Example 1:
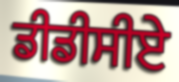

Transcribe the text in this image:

ਡੀਡੀਸੀਏ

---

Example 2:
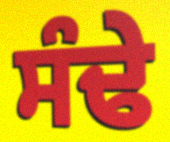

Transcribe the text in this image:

ਸੰਢੇ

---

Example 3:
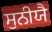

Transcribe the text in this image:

ਸੁਨੀਯੈ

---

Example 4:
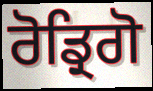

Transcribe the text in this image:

ਰੋਡ੍ਰਿਗੋ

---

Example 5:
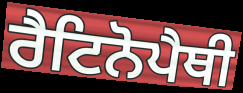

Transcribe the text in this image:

ਰੈਟਿਨੋਪੈਥੀ